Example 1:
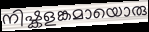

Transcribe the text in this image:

നിഷ്കളങ്കമായൊരു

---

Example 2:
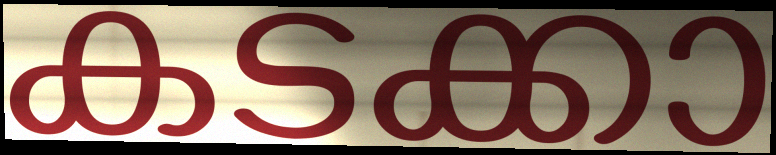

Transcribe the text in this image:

കടക്കാ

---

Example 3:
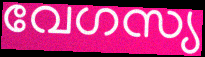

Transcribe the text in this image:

വേഗസ്യ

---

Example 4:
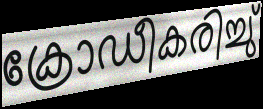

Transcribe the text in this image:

ക്രോഡീകരിച്ചു്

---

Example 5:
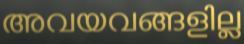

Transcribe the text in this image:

അവയവങ്ങളില്ല